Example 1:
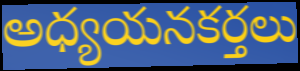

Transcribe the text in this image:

అధ్యయనకర్తలు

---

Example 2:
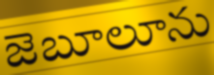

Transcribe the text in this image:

జెబూలూను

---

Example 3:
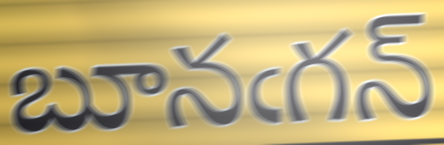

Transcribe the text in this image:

బూనఁగన్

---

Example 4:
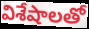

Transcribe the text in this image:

విశేషాలతో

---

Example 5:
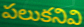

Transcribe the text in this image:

పలుకనివి